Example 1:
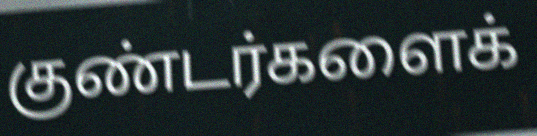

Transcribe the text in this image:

குண்டர்களைக்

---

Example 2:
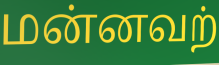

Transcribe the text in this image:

மன்னவற்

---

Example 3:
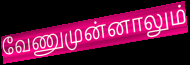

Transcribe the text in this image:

வேணுமுன்னாலும்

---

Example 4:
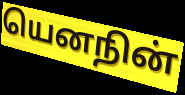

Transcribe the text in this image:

யெனநின்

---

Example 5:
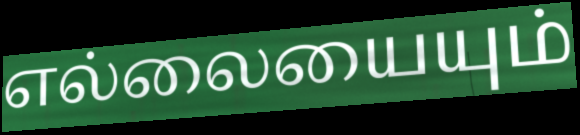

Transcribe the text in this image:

எல்லையையும்